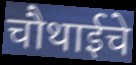
चौथाईचे